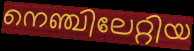
നെഞ്ചിലേറ്റിയ